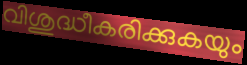
വിശുദ്ധീകരിക്കുകയും